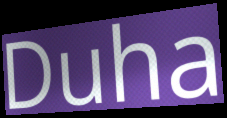
Duha